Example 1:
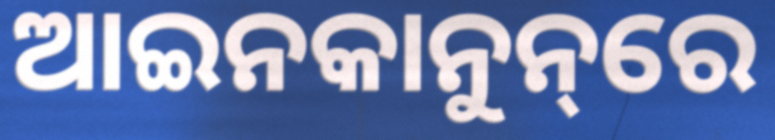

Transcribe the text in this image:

ଆଇନକାନୁନ୍‌ରେ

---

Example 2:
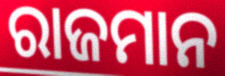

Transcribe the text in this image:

ରାଜମାନ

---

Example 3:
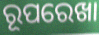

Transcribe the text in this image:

ରୂପରେଖା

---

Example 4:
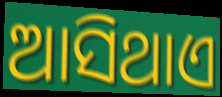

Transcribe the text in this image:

ଆସିଥାଏ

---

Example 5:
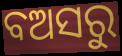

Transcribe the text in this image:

ବଅସରୁ